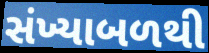
સંખ્યાબળથી